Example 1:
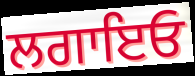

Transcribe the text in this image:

ਲਗਾਇਓ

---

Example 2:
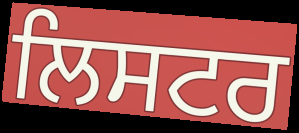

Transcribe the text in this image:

ਲਿਸਟਰ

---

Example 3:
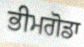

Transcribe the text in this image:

ਭੀਮਗੋਡਾ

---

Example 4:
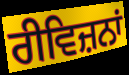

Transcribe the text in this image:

ਰੀਵਿਜ਼ਨਾਂ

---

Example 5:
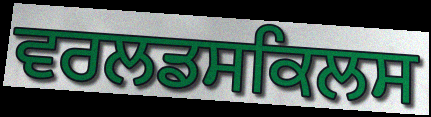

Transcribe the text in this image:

ਵਰਲਡਸਕਿਲਸ